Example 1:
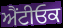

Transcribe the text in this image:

ਐਂਟੀਓਕ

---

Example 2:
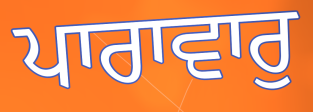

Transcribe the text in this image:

ਪਾਰਾਵਾਰੁ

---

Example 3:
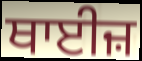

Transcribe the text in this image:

ਥਾਈਜ਼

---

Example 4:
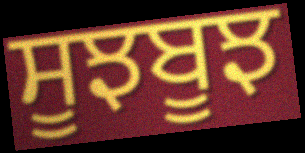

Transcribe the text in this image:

ਸੂਝਬੂਝ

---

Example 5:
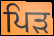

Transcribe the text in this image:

ਪਿੜ